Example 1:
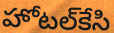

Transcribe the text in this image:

హోటల్‌కేసి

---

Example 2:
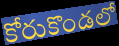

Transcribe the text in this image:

కోరుకొండలో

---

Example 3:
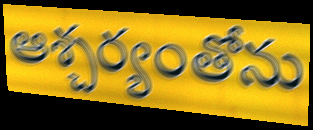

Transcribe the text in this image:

ఆశ్చర్యంతోను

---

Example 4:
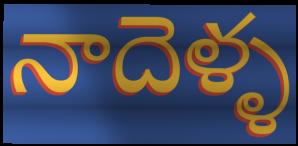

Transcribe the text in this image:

నాదెళ్ళ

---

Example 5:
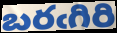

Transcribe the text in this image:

బరఁగిరి